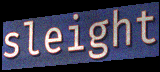
sleight